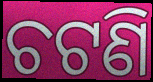
ଚଟଣି